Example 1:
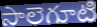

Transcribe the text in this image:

సాలెగూటి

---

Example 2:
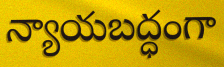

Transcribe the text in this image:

న్యాయబద్ధంగా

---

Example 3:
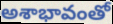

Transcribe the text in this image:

అశాభావంతో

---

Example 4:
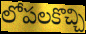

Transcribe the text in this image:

లోపలకొచ్చి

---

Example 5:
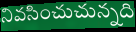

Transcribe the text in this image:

నివసించుచున్నది